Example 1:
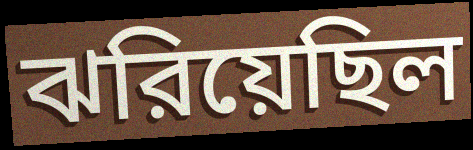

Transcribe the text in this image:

ঝরিয়েছিল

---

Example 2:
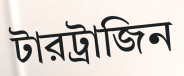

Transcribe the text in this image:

টারট্রাজিন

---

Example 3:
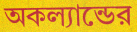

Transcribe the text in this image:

অকল্যান্ডের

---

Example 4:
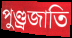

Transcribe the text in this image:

পুণ্ড্রজাতি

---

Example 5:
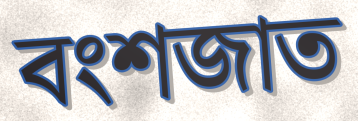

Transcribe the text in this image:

বংশজাত